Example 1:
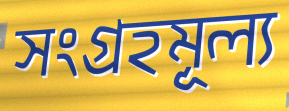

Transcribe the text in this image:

সংগ্রহমূল্য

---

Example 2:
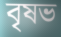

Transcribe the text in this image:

বৃষভ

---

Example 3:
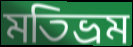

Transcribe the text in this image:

মতিভ্রম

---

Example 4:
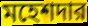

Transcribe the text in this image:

মহেশদার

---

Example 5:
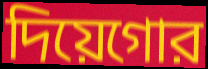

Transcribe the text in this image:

দিয়েগোর